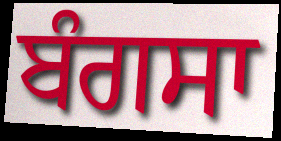
ਬੰਗਸਾ